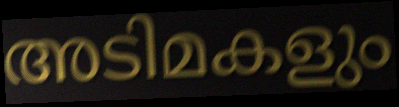
അടിമകളും